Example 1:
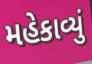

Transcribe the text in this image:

મહેકાવ્યું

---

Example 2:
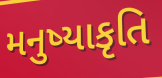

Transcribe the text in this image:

મનુષ્યાકૃતિ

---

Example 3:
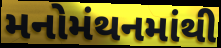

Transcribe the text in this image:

મનોમંથનમાંથી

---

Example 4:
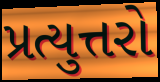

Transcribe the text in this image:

પ્રત્યુત્તરો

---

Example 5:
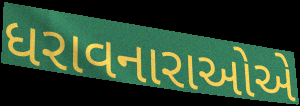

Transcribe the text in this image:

ધરાવનારાઓએ